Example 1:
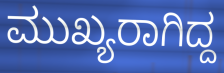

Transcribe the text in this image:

ಮುಖ್ಯರಾಗಿದ್ದ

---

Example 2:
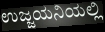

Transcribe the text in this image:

ಉಜ್ಜಯನಿಯಲ್ಲಿ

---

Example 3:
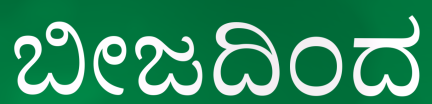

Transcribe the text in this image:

ಬೀಜದಿಂದ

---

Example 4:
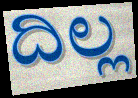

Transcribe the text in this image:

ದಿಲ್ಲ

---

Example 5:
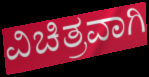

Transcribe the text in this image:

ವಿಚಿತ್ರವಾಗಿ